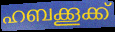
ഹബക്കൂക്ക്